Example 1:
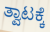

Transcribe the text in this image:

ತ್ವಾಟಕ್ಕೆ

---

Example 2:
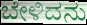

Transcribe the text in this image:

ಬೇಳಿದನು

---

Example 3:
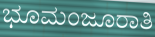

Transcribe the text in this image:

ಭೂಮಂಜೂರಾತಿ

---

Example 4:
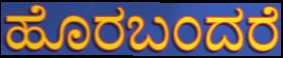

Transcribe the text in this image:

ಹೊರಬಂದರೆ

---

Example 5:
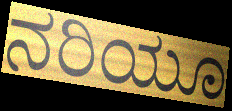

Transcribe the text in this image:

ನರಿಯೂ